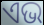
ଏଭ